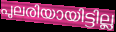
പുലരിയായിട്ടില്ല